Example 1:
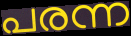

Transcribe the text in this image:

പരന്ന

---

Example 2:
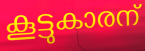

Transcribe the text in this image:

കൂട്ടുകാരന്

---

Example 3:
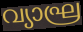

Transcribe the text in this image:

വ്യാഘ്ര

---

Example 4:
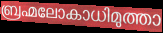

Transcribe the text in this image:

ബ്രഹ്മലോകാധിമുത്താ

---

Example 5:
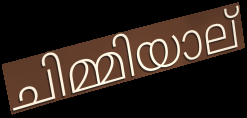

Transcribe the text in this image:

ചിമ്മിയാല്